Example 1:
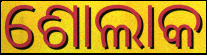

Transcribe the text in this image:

ଶୋଲାକ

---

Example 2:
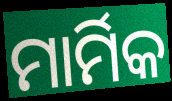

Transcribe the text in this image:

ମାର୍ମିକ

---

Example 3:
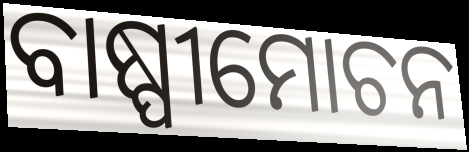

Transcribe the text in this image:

ବାଷ୍ପୀମୋଚନ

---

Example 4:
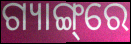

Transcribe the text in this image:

ଗ୍ୟାଙ୍ଗ୍‌ରେ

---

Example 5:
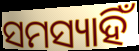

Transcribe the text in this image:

ସମସ୍ୟାହିଁ